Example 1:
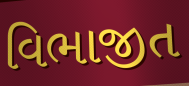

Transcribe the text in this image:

વિભાજીત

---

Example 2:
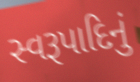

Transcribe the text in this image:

સ્વરૂપાદિનું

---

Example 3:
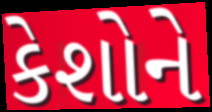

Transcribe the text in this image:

કેશોને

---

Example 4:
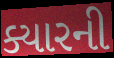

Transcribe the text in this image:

ક્યારની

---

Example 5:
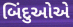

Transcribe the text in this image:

બિંદુઓએ